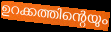
ഉറക്കത്തിന്റെയും